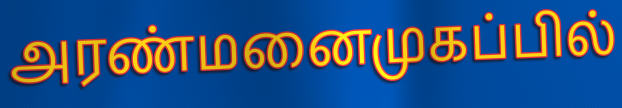
அரண்மனைமுகப்பில்